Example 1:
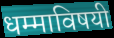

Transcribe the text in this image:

धम्माविषयी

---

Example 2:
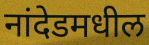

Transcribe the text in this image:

नांदेडमधील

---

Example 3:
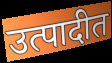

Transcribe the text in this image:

उत्पादीत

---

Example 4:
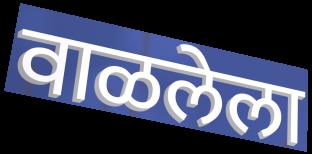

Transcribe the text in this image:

वाळलेला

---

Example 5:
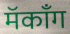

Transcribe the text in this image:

मॅकाँग